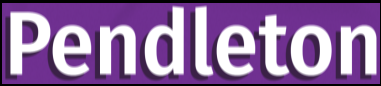
Pendleton